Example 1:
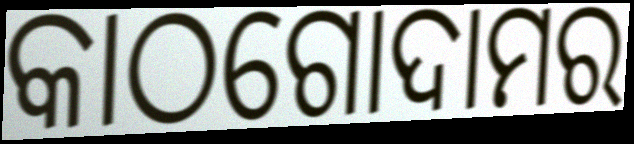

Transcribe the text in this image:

କାଠଗୋଦାମର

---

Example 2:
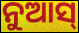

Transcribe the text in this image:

ନୁଆସ୍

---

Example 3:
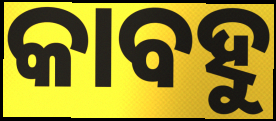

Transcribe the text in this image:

କାବହୁ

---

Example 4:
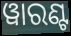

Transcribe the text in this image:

ୱାରଣ୍ଟ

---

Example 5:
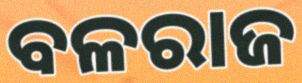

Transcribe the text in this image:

ବଳରାଜ